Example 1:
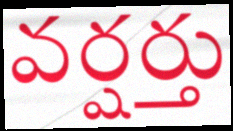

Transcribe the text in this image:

వర్షర్తు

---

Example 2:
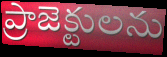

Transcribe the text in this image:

ప్రాజెక్టులను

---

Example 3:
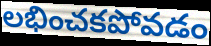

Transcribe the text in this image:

లభించకపోవడం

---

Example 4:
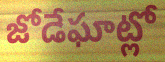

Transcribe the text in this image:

జోడేఘాట్లో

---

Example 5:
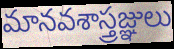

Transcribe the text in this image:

మానవశాస్త్రజ్ఞులు